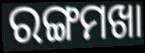
ରଙ୍ଗମଖା